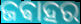
ଜଵାହର